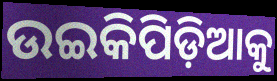
ଉଇକିପିଡ଼ିଆକୁ